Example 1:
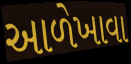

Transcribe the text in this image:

આળેખાવા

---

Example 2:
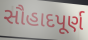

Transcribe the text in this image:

સૌહાદપૂર્ણ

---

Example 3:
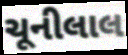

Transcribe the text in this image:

ચૂનીલાલ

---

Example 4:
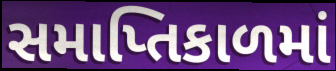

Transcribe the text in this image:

સમાપ્તિકાળમાં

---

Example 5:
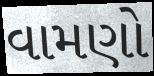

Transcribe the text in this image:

વામણો